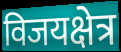
विजयक्षेत्र